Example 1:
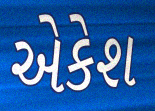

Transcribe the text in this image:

એકેશ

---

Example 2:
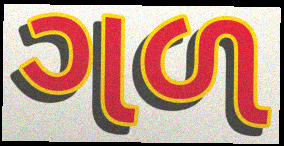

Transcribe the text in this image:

ગળ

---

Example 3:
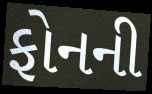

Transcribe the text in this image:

ફોનની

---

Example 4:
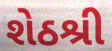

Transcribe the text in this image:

શેઠશ્રી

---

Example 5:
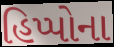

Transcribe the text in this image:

હિપ્પોના